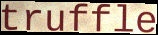
truffle